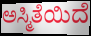
ಅಸ್ಮಿತೆಯಿದೆ